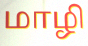
மாழி